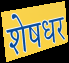
शेषधर